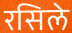
रसिले